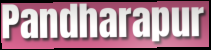
Pandharapur